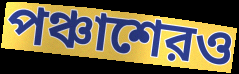
পঞ্চাশেরও